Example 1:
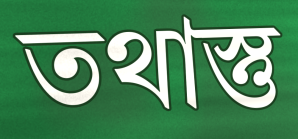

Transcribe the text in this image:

তথাস্তু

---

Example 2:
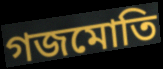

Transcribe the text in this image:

গজমোতি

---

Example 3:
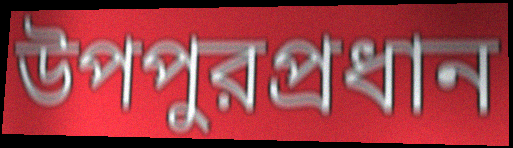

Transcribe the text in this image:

উপপুরপ্রধান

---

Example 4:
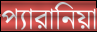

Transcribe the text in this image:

প্যারানিয়া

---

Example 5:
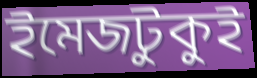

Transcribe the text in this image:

ইমেজটুকুই